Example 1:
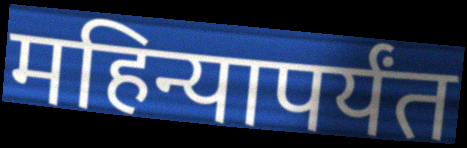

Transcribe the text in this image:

महिन्यापर्यंत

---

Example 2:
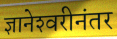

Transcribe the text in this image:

ज्ञानेश्वरीनंतर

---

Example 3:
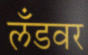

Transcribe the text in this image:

लँडवर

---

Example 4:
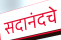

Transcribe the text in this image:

सदानंदचे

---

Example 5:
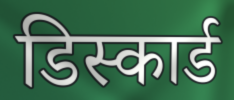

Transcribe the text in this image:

डिस्कार्ड